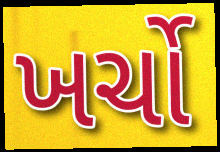
ખર્ચો